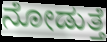
ನೋಡುತ್ತೆ